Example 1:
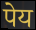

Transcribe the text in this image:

पेय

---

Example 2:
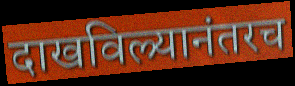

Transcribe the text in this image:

दाखविल्यानंतरच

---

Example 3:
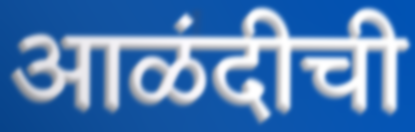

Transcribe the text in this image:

आळंदीची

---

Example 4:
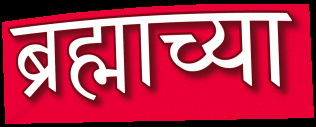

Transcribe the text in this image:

ब्रह्माच्या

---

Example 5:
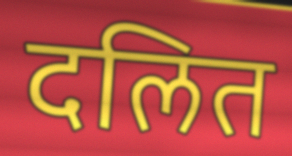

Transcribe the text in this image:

दलित